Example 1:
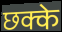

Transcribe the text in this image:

छक्के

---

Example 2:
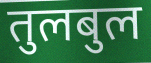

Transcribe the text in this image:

तुलबुल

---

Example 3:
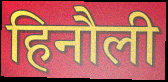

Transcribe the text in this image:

हिनौली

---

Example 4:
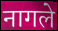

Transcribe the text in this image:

नागले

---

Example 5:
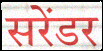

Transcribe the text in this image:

सरेंडर